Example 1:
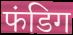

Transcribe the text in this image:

फंडिग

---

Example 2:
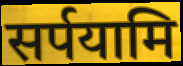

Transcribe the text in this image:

सर्पयामि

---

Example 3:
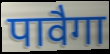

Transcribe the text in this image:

पावैगा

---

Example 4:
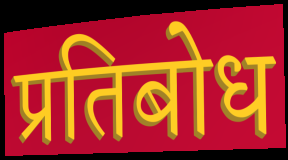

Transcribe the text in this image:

प्रतिबोध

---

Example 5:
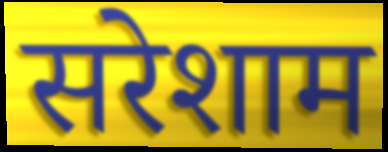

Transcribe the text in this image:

सरेशाम